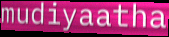
mudiyaatha